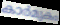
കാർമുകം